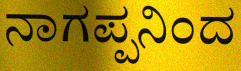
ನಾಗಪ್ಪನಿಂದ